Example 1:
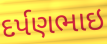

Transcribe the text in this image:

દર્પણભાઇ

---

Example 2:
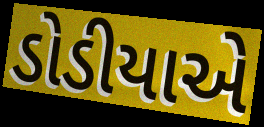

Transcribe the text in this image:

ડોડીયાએ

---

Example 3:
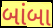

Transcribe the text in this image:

બાંબા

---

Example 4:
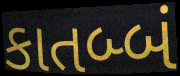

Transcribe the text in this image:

કાતબ્બં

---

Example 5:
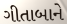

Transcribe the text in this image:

ગીતાબાને